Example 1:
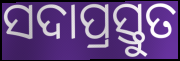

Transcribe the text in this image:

ସଦାପ୍ରସ୍ତୁତ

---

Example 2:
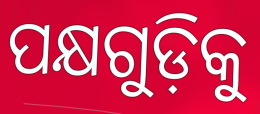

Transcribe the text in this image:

ପକ୍ଷଗୁଡ଼ିକୁ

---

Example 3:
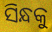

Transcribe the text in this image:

ସିନ୍ଧକୁ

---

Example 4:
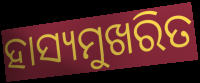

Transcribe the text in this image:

ହାସ୍ୟମୁଖରିତ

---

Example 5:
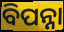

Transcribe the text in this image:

ବିପନ୍ନା